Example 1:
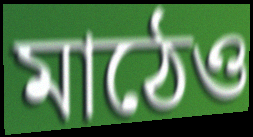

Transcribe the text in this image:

মাঠেও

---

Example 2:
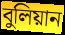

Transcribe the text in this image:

বুলিয়ান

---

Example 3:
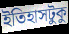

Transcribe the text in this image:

ইতিহাসটুকু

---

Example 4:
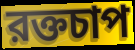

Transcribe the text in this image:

রক্তচাপ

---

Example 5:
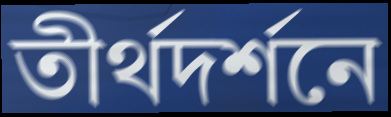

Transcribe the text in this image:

তীর্থদর্শনে